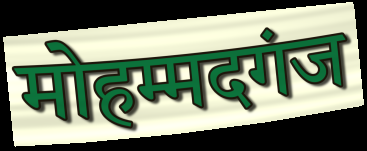
मोहम्मदगंज